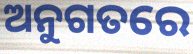
ଅନୁଗତରେ